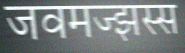
जवमज्झस्स